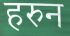
हरुन